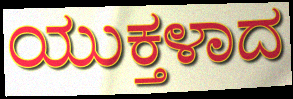
ಯುಕ್ತಳಾದ